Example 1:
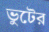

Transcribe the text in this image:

ভুটের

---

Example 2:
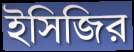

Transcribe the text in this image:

ইসিজির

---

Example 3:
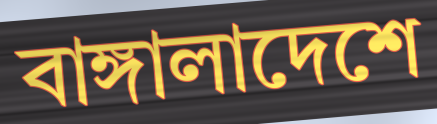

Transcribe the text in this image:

বাঙ্গালাদেশে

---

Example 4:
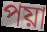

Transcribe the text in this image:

পয়া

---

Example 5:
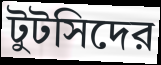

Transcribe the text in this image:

টুটসিদের